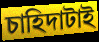
চাহিদাটাই